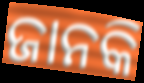
ଜାନକି